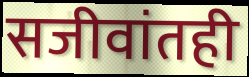
सजीवांतही